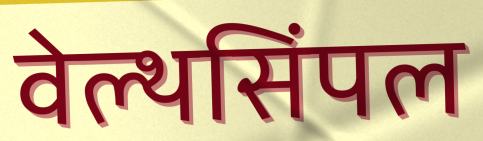
वेल्थसिंपल